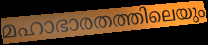
മഹാഭാരതത്തിലെയും